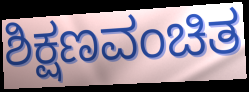
ಶಿಕ್ಷಣವಂಚಿತ